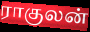
ராகுலன்